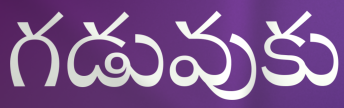
గడువుకు